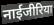
नाईजीरिया